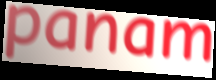
panam